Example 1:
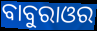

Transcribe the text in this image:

ବାବୁରାଓର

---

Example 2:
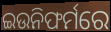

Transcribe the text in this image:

ଇଉନିଫର୍ମରେ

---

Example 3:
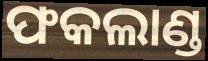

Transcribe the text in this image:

ଫକଲାଣ୍ଡ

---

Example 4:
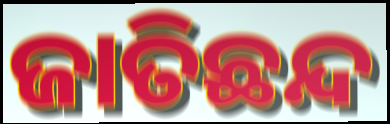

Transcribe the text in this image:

ଜାତିଛନ୍ଦ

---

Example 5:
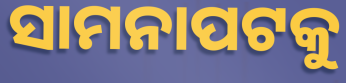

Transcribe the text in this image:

ସାମନାପଟକୁ